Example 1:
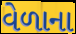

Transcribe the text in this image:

વેળાના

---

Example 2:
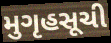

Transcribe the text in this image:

મુગૃહસૂચી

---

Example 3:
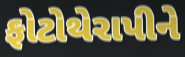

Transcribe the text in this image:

ફોટોથેરાપીને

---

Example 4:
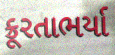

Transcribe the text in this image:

ક્રૂરતાભર્યા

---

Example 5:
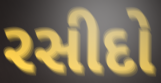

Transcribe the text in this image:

રસીદો